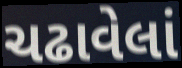
ચઢાવેલાં